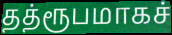
தத்ரூபமாகச்